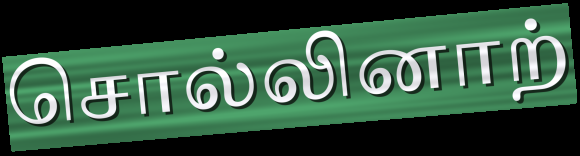
சொல்லினாற்